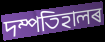
দম্পতিহালৰ